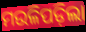
ମଉଳିପଡ଼ିଲା